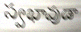
స్వభావుడా